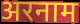
अरनाम